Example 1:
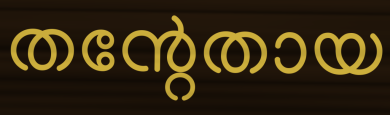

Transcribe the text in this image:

തന്റേതായ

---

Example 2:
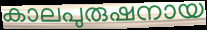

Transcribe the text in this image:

കാലപുരുഷനായ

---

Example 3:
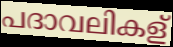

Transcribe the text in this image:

പദാവലികള്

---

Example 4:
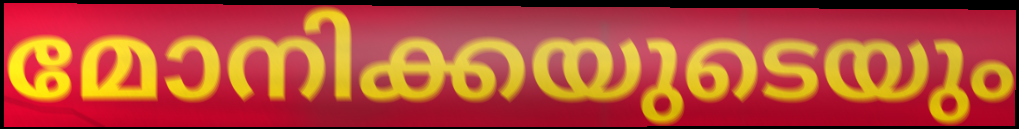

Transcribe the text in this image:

മോനിക്കയുടെയും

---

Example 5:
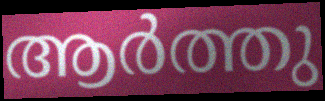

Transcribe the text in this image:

ആർത്തു